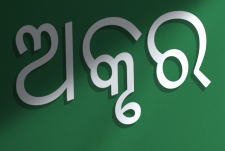
ଅକୃର